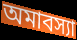
অমাবস্যা